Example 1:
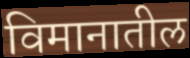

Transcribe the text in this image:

विमानातील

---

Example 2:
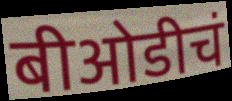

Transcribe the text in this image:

बीओडीचं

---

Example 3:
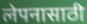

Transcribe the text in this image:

लेपनासाठी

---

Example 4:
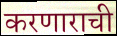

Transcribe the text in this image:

करणाराची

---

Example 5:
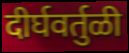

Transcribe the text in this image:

दीर्घवर्तुळी